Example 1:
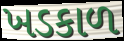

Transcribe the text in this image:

ખડકાળ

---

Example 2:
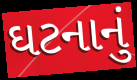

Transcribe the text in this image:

ઘટનાનું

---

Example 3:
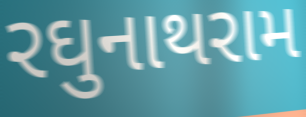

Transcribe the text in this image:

રઘુનાથરામ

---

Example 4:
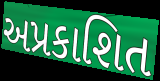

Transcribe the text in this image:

અપ્રકાશિત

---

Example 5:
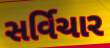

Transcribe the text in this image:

સર્વિચાર